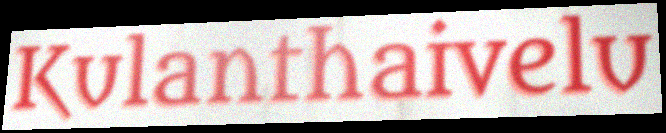
Kulanthaivelu